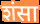
शंसा